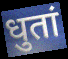
धुतां